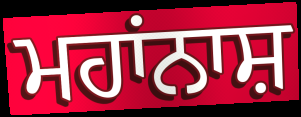
ਮਹਾਂਨਾਸ਼